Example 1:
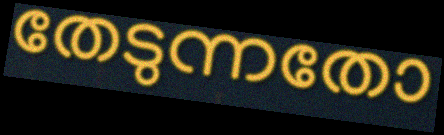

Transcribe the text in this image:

തേടുന്നതോ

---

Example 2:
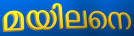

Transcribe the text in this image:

മയിലനെ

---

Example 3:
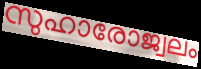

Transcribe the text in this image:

സുഹാരോജ്വലം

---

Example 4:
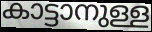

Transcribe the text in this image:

കാട്ടാനുള്ള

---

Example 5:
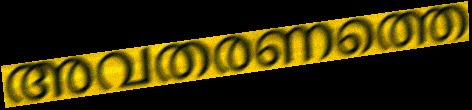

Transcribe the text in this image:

അവതരണത്തെ